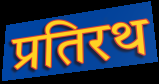
प्रतिरथ